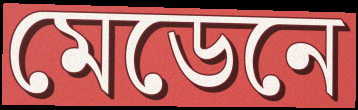
মেডেনে